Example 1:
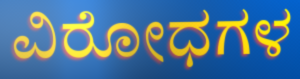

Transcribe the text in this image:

ವಿರೋಧಗಳ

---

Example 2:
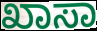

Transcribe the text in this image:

ಖಾಸಾ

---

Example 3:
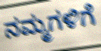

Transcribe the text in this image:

ನಮ್ಮಗಳಿಗೆ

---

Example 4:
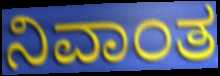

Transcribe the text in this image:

ನಿವಾಂತ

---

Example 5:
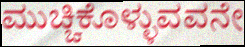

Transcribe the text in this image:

ಮುಚ್ಚಿಕೊಳ್ಳುವವನೇ